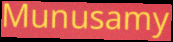
Munusamy